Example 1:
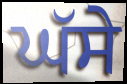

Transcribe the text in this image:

ਘੱਸੇ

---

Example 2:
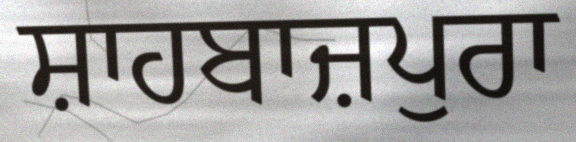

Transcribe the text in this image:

ਸ਼ਾਹਬਾਜ਼ਪੁਰਾ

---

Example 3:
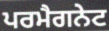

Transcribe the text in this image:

ਪਰਮੈਗਨੇਟ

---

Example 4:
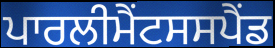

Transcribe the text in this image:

ਪਾਰਲੀਮੈਂਟਸਸਪੈਂਡ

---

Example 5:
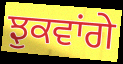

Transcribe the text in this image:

ਝੁਕਵਾਂਗੇ